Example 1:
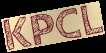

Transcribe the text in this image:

KPCL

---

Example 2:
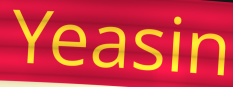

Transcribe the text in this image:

Yeasin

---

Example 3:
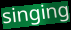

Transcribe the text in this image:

singing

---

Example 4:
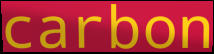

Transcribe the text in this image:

carbon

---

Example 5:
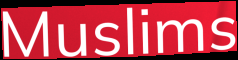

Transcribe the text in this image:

Muslims